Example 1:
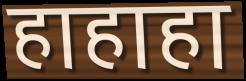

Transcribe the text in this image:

हाहाहा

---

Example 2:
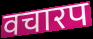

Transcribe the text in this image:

वचारप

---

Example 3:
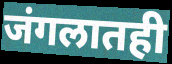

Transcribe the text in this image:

जंगलातही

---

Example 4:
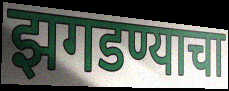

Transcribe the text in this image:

झगडण्याचा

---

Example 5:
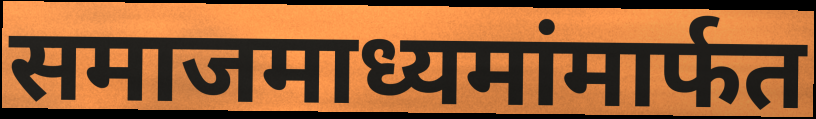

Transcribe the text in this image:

समाजमाध्यमांमार्फत